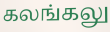
கலங்கலு